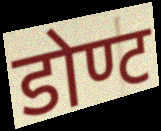
डोण्ट